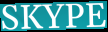
SKYPE